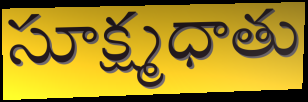
సూక్ష్మధాతు